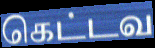
கெட்டவ